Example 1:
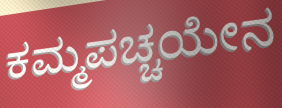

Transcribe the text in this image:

ಕಮ್ಮಪಚ್ಚಯೇನ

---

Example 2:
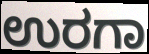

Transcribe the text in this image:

ಉರಗಾ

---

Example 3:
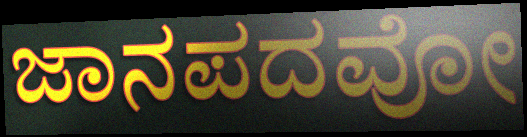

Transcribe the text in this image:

ಜಾನಪದವೋ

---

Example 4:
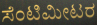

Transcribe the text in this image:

ಸೆಂಟಿಮೀಟರ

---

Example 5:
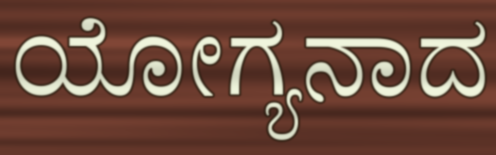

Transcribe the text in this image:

ಯೋಗ್ಯನಾದ